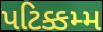
પટિક્કમ્મ